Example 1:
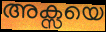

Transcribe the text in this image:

അക്സയെ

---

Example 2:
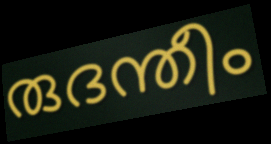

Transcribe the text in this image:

രുദന്തീം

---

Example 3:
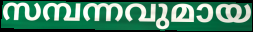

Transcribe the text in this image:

സമ്പന്നവുമായ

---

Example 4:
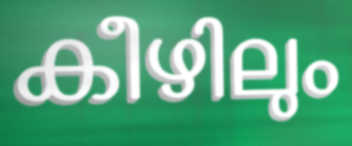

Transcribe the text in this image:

കീഴിലും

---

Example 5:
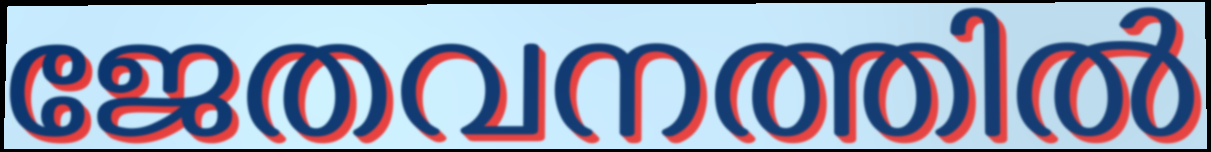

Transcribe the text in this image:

ജേതവനത്തിൽ